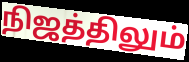
நிஜத்திலும்